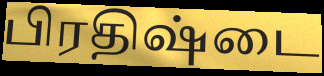
பிரதிஷ்டை